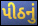
પીઠનું